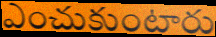
ఎంచుకుంటారు